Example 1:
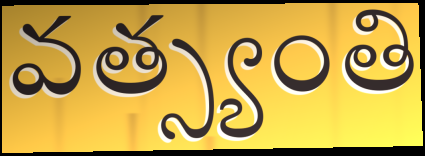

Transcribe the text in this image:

వత్స్యంతి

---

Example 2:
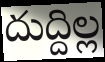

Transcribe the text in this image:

దుద్దిల్ల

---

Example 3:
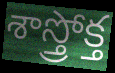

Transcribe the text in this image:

శాస్త్రోక్త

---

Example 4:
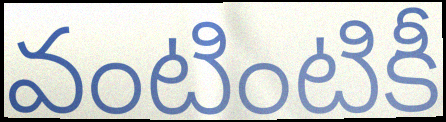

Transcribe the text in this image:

వంటింటికీ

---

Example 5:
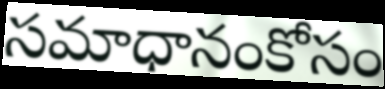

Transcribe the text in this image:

సమాధానంకోసం